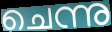
ചെന്നു